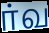
ர்வ